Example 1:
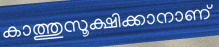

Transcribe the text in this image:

കാത്തുസൂക്ഷിക്കാനാണ്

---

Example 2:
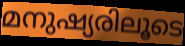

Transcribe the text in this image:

മനുഷ്യരിലൂടെ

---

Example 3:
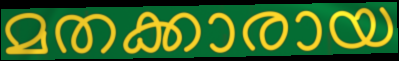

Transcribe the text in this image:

മതക്കാരായ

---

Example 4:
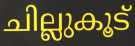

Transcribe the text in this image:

ചില്ലുകൂട്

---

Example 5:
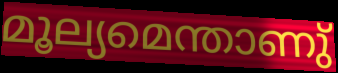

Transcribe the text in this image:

മൂല്യമെന്താണു്